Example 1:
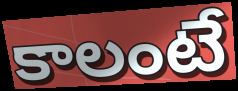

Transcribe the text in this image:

కాలంటే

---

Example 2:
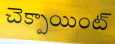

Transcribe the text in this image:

చెక్పాయింట్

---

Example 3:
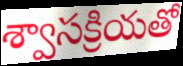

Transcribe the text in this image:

శ్వాసక్రియతో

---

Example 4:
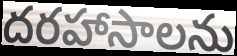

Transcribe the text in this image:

దరహాసాలను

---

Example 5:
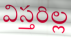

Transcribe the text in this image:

విస్తరిల్ల